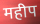
महीप